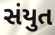
સંયુત